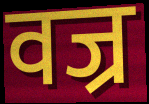
वज्र